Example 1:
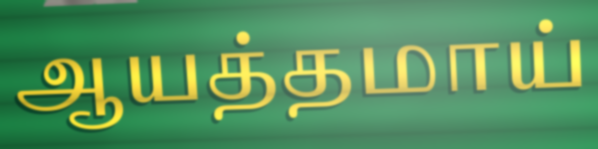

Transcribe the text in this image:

ஆயத்தமாய்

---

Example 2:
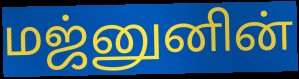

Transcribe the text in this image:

மஜ்னுனின்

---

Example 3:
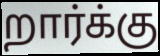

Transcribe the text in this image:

றார்க்கு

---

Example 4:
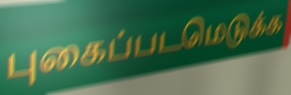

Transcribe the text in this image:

புகைப்படமெடுக்க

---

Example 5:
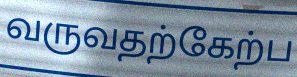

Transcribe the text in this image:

வருவதற்கேற்ப